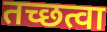
तच्छत्वा